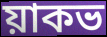
য়াকভ